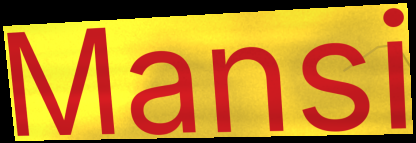
Mansi